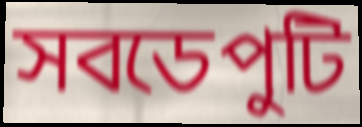
সবডেপুটি